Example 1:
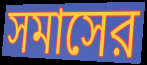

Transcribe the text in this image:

সমাসের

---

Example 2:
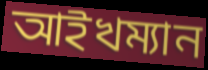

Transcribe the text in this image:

আইখম্যান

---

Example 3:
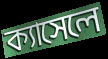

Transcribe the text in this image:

ক্যাসেলে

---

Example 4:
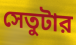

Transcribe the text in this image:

সেতুটার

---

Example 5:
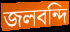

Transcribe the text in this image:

জলবন্দি